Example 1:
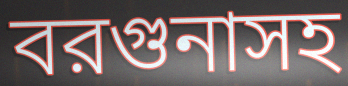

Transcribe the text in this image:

বরগুনাসহ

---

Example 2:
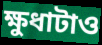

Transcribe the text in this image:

ক্ষুধাটাও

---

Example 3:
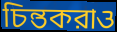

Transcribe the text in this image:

চিন্তকরাও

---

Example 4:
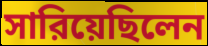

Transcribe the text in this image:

সারিয়েছিলেন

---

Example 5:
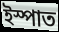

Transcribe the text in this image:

ইস্পাত